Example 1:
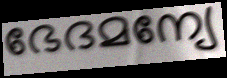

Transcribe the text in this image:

ഭേദമന്യേ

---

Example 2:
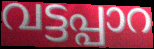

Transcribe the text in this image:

വട്ടപ്പാറ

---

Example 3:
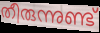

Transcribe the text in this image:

തീരുന്നുണ്ട്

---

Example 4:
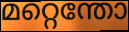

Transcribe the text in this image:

മറ്റെന്തോ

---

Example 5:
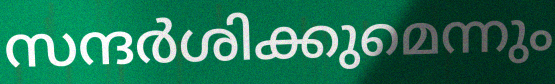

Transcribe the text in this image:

സന്ദർശിക്കുമെന്നും